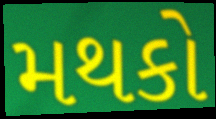
મથકો